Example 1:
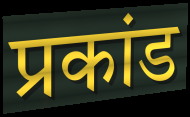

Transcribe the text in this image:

प्रकांड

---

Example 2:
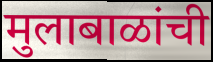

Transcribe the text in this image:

मुलाबाळांची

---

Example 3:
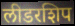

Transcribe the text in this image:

लीडरशिप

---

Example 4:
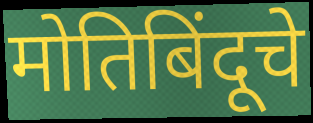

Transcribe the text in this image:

मोतिबिंदूचे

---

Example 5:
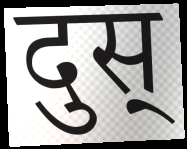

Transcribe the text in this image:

दुस्